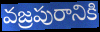
వజ్రపురానికి